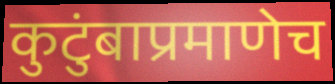
कुटुंबाप्रमाणेच